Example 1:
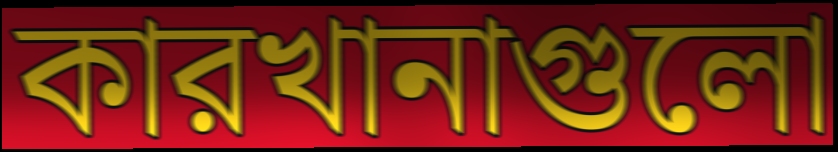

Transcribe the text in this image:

কারখানাগুলো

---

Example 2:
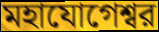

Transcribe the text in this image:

মহাযোগেশ্বর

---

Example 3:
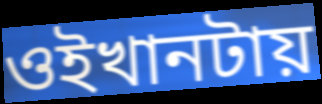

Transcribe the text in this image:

ওইখানটায়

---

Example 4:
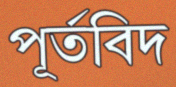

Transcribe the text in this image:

পূর্তবিদ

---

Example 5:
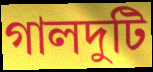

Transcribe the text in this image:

গালদুটি